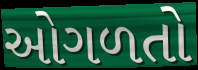
ઓગળતો